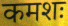
कमशः